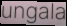
ungala